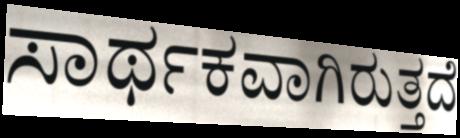
ಸಾರ್ಥಕವಾಗಿರುತ್ತದೆ